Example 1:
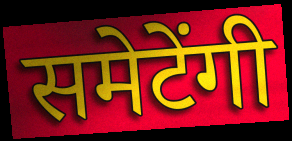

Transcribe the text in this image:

समेटेंगी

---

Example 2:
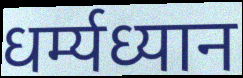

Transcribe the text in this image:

धर्म्यध्यान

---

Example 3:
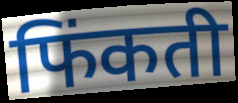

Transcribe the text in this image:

फिंकती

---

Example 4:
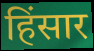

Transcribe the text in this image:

हिंसार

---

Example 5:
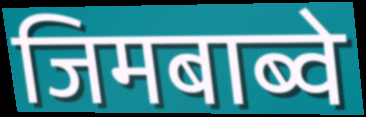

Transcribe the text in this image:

जिमबाब्वे